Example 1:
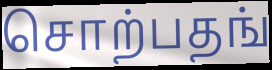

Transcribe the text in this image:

சொற்பதங்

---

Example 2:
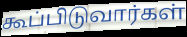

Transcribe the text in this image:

கூப்பிடுவார்கள்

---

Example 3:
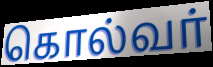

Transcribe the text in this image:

கொல்வர்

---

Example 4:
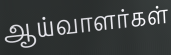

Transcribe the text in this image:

ஆய்வாளர்கள்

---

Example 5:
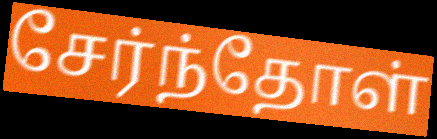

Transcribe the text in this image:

சேர்ந்தோள்